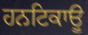
ਹਨਟਿਕਾਊ